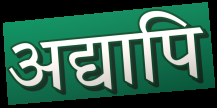
अद्यापि